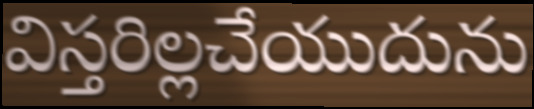
విస్తరిల్లచేయుదును